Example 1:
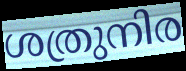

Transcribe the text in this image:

ശത്രുനിര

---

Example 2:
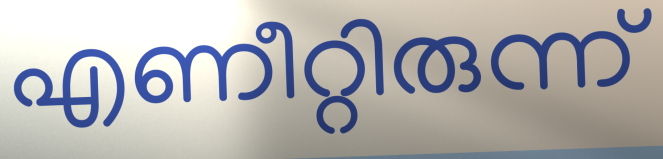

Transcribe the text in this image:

എണീറ്റിരുന്ന്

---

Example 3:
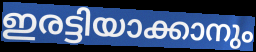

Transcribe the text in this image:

ഇരട്ടിയാക്കാനും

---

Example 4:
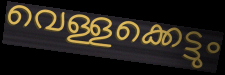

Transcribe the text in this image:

വെള്ളക്കെട്ടും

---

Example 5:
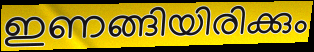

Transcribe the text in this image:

ഇണങ്ങിയിരിക്കും